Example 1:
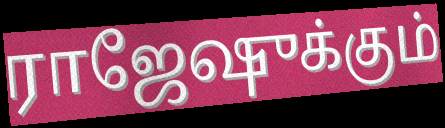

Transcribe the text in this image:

ராஜேஷுக்கும்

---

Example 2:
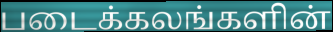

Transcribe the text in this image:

படைக்கலங்களின்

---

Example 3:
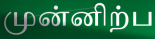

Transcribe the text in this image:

முன்னிற்ப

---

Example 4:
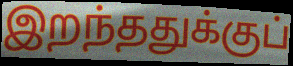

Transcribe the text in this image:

இறந்ததுக்குப்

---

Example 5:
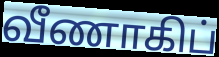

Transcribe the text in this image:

வீணாகிப்